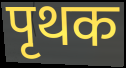
पृथक